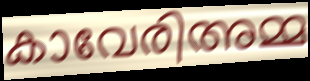
കാവേരിഅമ്മ